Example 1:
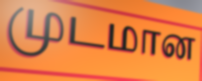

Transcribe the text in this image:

முடமான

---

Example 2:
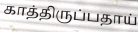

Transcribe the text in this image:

காத்திருப்பதாய்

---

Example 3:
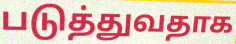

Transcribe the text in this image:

படுத்துவதாக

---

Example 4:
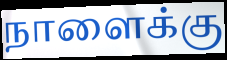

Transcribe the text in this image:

நாளைக்கு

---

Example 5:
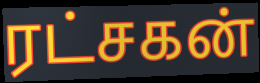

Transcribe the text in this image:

ரட்சகன்